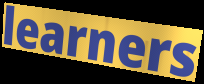
learners